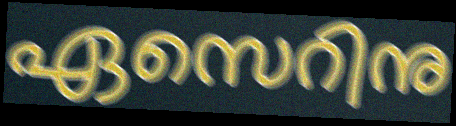
ഏസെറിനു